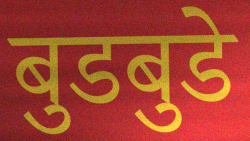
बुडबुडे